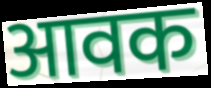
आवक